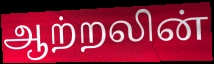
ஆற்றலின்